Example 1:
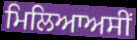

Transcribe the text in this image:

ਮਿਲਿਆਅਸੀਂ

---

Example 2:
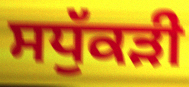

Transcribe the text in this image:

ਸਧੁੱਕੜੀ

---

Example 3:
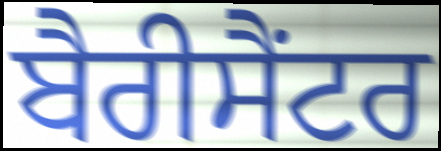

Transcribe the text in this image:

ਬੈਰੀਸੈਂਟਰ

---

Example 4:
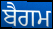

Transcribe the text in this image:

ਬੈਗਮ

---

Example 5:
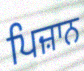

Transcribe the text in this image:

ਪਿਜ਼ਾਨ